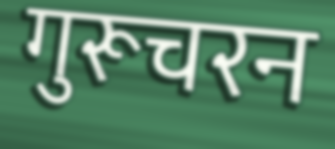
गुरूचरन